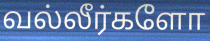
வல்லீர்களோ